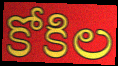
కోకిల